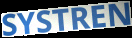
SYSTREN